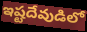
ఇష్టదేవుడిలో